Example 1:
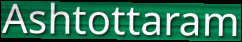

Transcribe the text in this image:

Ashtottaram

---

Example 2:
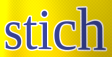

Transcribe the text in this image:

stich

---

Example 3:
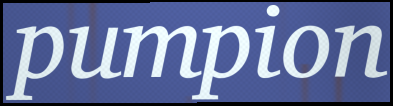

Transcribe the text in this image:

pumpion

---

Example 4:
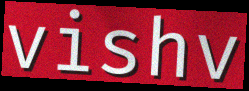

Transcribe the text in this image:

vishv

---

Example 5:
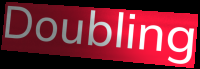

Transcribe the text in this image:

Doubling